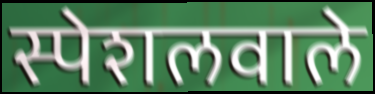
स्पेशलवाले